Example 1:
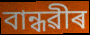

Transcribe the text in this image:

বান্ধৱীৰ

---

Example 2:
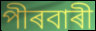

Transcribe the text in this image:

পীৰবাৰী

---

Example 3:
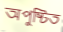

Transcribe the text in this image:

অপুষ্টিত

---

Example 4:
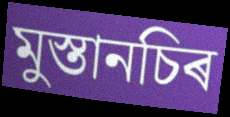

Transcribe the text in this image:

মুস্তানচিৰ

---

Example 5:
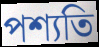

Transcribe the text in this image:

পশ্যতি